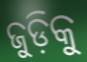
ଜୁଡ଼ିକୁ